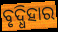
ବୃଦ୍ଧିହାର